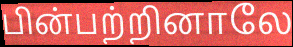
பின்பற்றினாலே